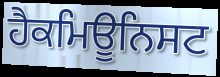
ਹੈਕਮਿਊਨਿਸਟ